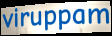
viruppam